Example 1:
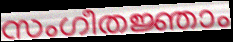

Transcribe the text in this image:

സംഗീതജ്ഞാം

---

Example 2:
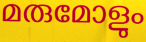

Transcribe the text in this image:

മരുമോളും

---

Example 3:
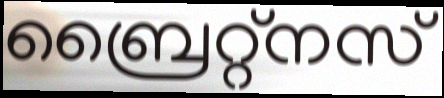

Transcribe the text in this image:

ബ്രൈറ്റ്നസ്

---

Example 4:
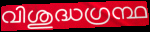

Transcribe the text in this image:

വിശുദ്ധഗ്രന്ഥ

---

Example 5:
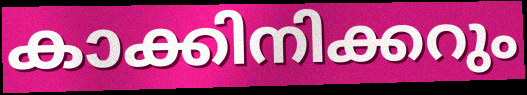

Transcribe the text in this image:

കാക്കിനിക്കറും